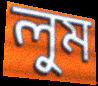
লুম